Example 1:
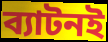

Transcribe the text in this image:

ব্যাটনই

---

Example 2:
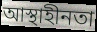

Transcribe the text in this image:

আস্থাহীনতা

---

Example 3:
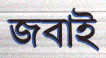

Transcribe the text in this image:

জবাই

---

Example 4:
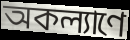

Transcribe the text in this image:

অকল্যাণে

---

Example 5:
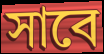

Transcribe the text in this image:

সাবে